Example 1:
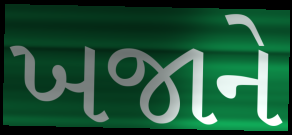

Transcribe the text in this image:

ખજાને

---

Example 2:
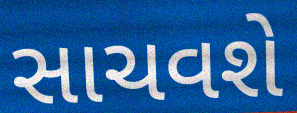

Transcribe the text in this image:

સાચવશે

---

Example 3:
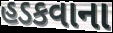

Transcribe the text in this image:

હડકવાના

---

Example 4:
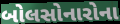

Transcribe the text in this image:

બોલસોનારોના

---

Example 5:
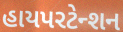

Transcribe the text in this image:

હાયપરટેન્શન